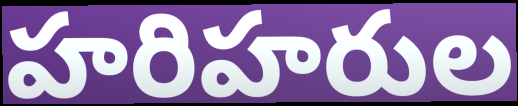
హరిహరుల